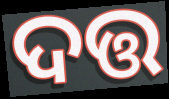
ଦତ୍ତ